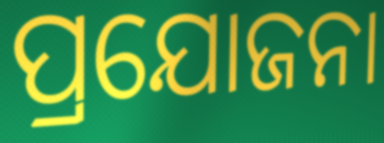
ପ୍ରଯୋଜନା